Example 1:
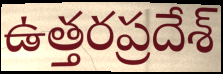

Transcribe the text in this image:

ఉత్తరప్రదేశ్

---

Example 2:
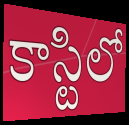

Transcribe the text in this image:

కాస్టిలో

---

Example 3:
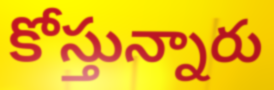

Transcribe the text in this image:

కోస్తున్నారు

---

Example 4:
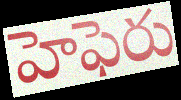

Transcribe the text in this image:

హెఫెరు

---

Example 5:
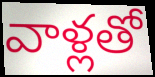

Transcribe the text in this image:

వాళ్లతో